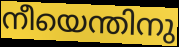
നീയെന്തിനു